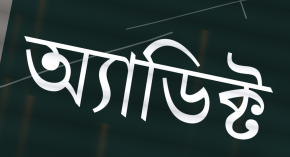
অ্যাডিক্ট